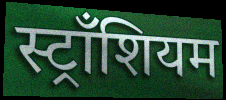
स्ट्राँशियम